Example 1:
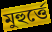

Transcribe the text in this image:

মুহুর্ত্তে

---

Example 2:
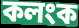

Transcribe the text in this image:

কলংক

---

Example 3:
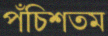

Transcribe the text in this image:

পঁচিশতম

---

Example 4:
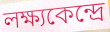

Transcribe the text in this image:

লক্ষ্যকেন্দ্রে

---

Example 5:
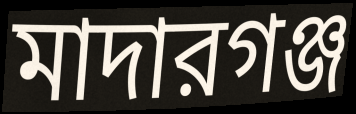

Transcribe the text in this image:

মাদারগঞ্জ